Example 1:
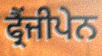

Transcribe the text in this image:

ਫ੍ਰੈਂਜੀਪੇਨ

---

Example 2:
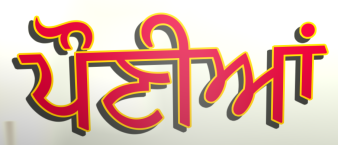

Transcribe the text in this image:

ਪੌਣੀਆਂ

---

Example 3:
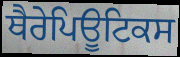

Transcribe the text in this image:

ਥੈਰੇਪਿਊਟਿਕਸ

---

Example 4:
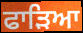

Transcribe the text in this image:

ਫਾੜਿਆ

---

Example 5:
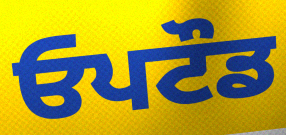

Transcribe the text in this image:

ਓਪਟੌਡ